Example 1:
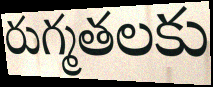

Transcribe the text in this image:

రుగ్మతలకు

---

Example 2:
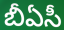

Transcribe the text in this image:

బీఏసీ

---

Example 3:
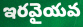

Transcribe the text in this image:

ఇరవైయవ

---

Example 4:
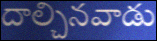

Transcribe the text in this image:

దాల్చినవాడు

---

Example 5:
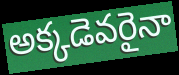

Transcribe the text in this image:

అక్కడెవరైనా